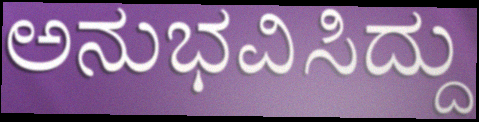
ಅನುಭವಿಸಿದ್ದು